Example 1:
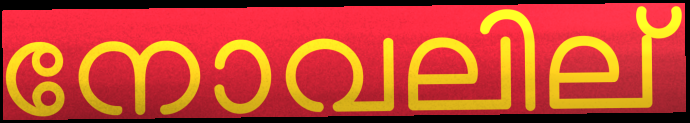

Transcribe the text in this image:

നോവലില്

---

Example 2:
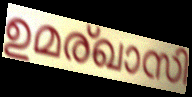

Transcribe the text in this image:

ഉമര്ഖാസി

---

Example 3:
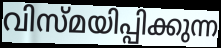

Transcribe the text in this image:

വിസ്മയിപ്പിക്കുന്ന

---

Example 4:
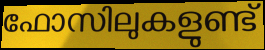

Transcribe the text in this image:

ഫോസിലുകളുണ്ട്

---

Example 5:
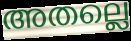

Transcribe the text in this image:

അതല്ലെ